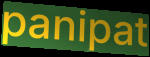
panipat